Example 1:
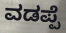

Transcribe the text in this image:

ವಡಪ್ಪೆ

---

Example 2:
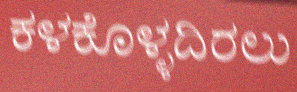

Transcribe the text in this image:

ಕಳಕೊಳ್ಳದಿರಲು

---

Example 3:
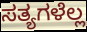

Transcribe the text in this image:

ಸತ್ಯಗಳೆಲ್ಲ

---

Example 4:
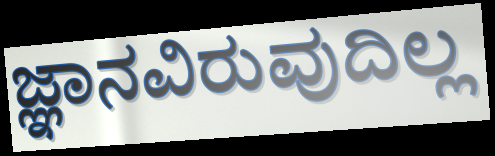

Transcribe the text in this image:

ಜ್ಞಾನವಿರುವುದಿಲ್ಲ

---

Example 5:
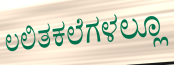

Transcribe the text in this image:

ಲಲಿತಕಲೆಗಳಲ್ಲೂ